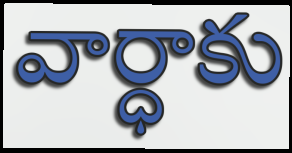
వార్ధాకు